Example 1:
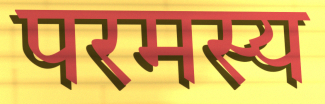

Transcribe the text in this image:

परमस्य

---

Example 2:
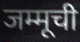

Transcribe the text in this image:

जम्मूची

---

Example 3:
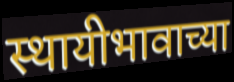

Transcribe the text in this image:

स्थायीभावाच्या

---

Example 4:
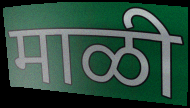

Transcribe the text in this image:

माळी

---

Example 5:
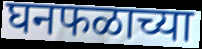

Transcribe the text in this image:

घनफळाच्या